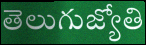
తెలుగుజ్యోతి